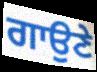
ਗਾਉਣੇ